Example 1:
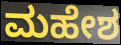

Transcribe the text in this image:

ಮಹೇಶ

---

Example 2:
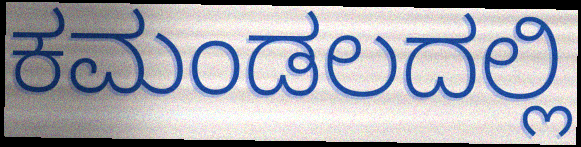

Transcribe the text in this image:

ಕಮಂಡಲದಲ್ಲಿ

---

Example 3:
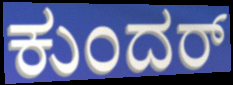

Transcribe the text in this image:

ಕುಂದರ್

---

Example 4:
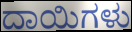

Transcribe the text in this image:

ದಾಯಿಗಳು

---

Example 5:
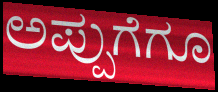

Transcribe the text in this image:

ಅಪ್ಪುಗೆಗೂ